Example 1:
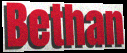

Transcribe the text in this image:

Bethan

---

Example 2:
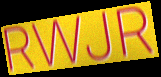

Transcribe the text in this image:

RWJR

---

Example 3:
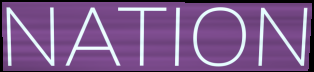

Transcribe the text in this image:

NATION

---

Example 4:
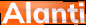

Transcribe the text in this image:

Alanti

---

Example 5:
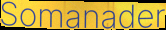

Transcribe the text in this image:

Somanader